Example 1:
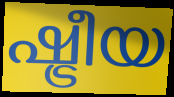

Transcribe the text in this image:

ഷ്ട്രീയ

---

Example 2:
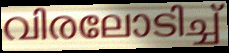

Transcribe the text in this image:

വിരലോടിച്ച്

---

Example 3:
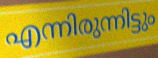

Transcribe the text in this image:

എന്നിരുന്നിട്ടും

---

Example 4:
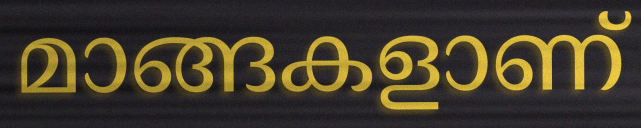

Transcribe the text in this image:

മാങ്ങകളാണ്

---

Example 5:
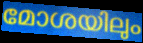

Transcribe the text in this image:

മോശയിലും